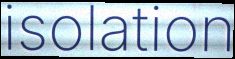
isolation